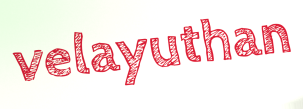
velayuthan